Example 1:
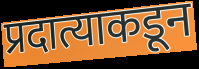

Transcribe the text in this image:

प्रदात्याकडून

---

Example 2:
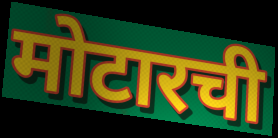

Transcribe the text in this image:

मोटारची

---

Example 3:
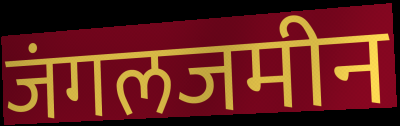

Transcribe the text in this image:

जंगलजमीन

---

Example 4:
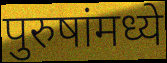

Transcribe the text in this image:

पुरुषांमध्ये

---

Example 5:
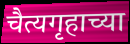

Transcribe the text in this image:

चैत्यगृहाच्या